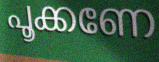
പൂക്കണേ